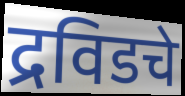
द्रविडचे